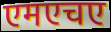
एमएचए